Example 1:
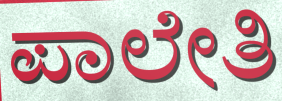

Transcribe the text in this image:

ಪಾಲೇತಿ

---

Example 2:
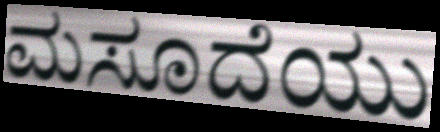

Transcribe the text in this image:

ಮಸೂದೆಯು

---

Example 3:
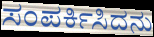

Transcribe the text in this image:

ಸಂಪರ್ಕಿಸಿದನು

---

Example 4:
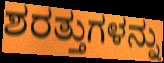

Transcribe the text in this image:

ಶರತ್ತುಗಳನ್ನು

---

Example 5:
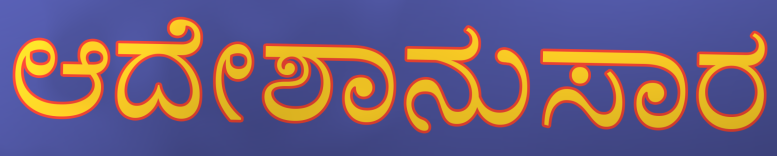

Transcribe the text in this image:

ಆದೇಶಾನುಸಾರ